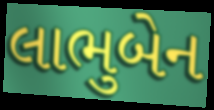
લાભુબેન